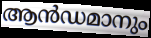
ആൻഡമാനും